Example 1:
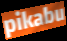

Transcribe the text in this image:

pikabu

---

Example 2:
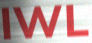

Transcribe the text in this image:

IWL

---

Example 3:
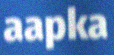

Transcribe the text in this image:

aapka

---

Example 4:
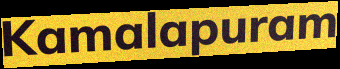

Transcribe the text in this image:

Kamalapuram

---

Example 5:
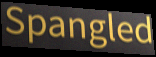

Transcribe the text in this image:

Spangled